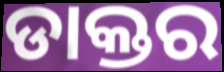
ଡାକ୍ତର